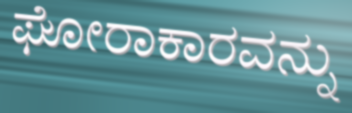
ಘೋರಾಕಾರವನ್ನು